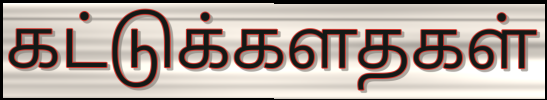
கட்டுக்களதகள்